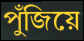
পুঁজিয়ে